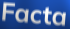
Facta